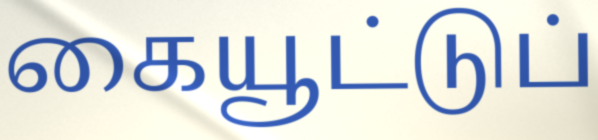
கையூட்டுப்